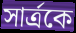
সার্ত্রকে